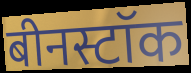
बीनस्टॉक